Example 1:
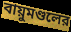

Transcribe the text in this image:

বায়ুমণ্ডলের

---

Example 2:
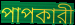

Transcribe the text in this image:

পাপকারী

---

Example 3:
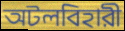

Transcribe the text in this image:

অটলবিহারী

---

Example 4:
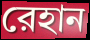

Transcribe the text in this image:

রেহান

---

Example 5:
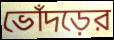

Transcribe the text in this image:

ভোঁদড়ের